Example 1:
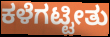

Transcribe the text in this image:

ಕಳೆಗಟ್ಟೀತು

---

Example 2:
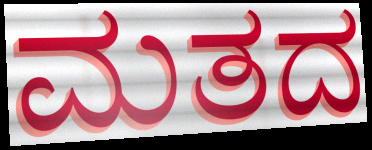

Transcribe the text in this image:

ಮತದ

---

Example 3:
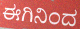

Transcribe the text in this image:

ಈಗಿನಿಂದ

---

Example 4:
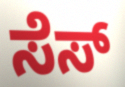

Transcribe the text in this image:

ಸೆಸ್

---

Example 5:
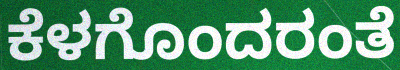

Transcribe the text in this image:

ಕೆಳಗೊಂದರಂತೆ